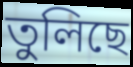
তুলিছে